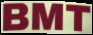
BMT